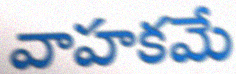
వాహకమే